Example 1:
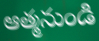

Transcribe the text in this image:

ఆత్మనుండి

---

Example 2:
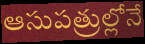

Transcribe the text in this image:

ఆసుపత్రుల్లోనే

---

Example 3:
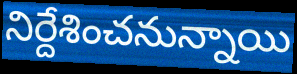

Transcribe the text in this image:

నిర్దేశించనున్నాయి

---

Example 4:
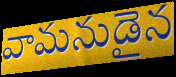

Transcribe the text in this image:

వామనుడైన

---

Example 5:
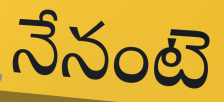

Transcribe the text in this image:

నేనంటె